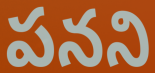
పనని